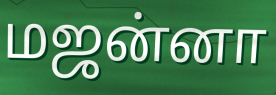
மஜன்னா